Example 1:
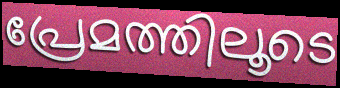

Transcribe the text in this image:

പ്രേമത്തിലൂടെ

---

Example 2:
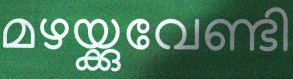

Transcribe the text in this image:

മഴയ്ക്കുവേണ്ടി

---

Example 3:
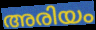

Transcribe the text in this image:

അരിയം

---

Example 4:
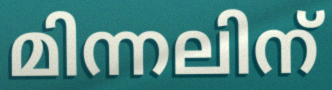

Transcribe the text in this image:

മിന്നലിന്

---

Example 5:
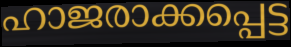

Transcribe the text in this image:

ഹാജരാക്കപ്പെട്ട